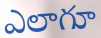
ఎలాగూ